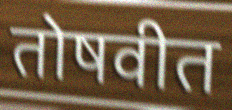
तोषवीत